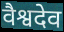
वैश्वदेव